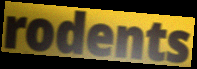
rodents